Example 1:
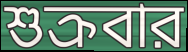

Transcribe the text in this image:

শুক্রবার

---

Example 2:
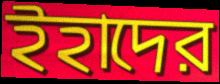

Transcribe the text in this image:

ইহাদের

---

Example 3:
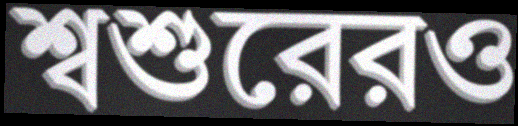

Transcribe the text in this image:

শ্বশুরেরও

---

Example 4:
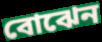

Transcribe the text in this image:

বোঝেন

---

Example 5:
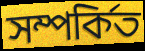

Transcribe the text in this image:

সম্পর্কিত